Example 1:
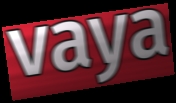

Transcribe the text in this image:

vaya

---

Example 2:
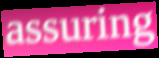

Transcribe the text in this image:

assuring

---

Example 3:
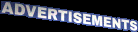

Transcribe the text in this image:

ADVERTISEMENTS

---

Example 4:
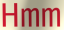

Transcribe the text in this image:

Hmm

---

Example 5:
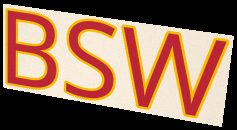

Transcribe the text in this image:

BSW